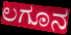
ಲಗೂನ